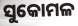
ସୁକୋମଳ